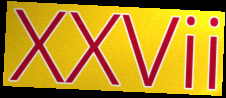
XXVii